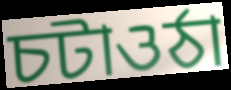
চটাওঠা